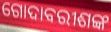
ଗୋଦାବରୀଶଙ୍କ